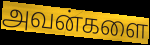
அவன்களை